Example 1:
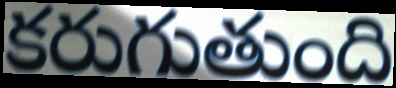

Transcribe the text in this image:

కరుగుతుంది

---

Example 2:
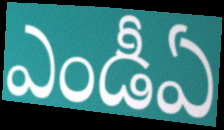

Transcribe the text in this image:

ఎండీఏ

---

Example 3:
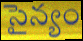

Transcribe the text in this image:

సైన్యం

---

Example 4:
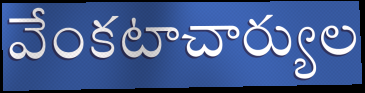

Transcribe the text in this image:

వేంకటాచార్యుల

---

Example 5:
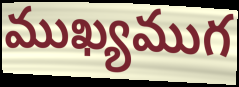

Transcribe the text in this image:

ముఖ్యముగ